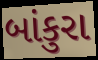
બાંકુરા